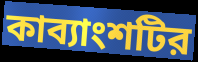
কাব্যাংশটির